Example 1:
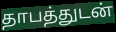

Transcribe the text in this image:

தாபத்துடன்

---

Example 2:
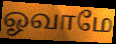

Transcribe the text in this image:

ஓவாமே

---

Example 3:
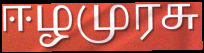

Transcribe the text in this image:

ஈழமுரசு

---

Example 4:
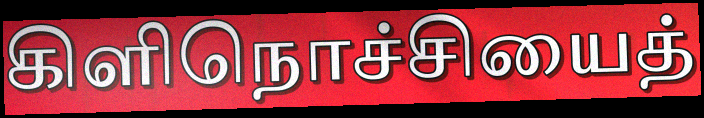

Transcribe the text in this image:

கிளிநொச்சியைத்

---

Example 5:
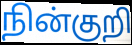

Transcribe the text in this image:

நின்குறி